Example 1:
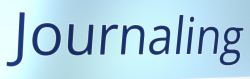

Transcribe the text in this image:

Journaling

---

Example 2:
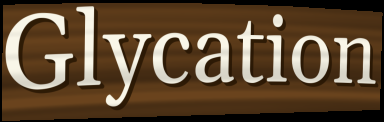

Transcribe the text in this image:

Glycation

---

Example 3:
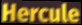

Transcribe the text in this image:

Hercule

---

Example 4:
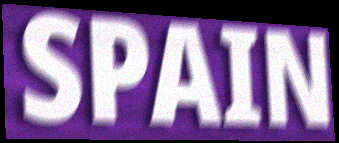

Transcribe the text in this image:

SPAIN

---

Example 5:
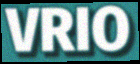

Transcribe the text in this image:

VRIO